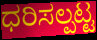
ಧರಿಸಲ್ಪಟ್ಟ